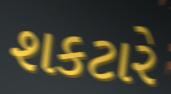
શકટારે